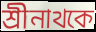
শ্রীনাথকে